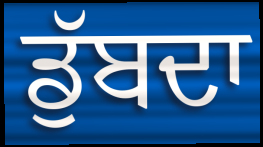
ਡੁੱਬਦਾ